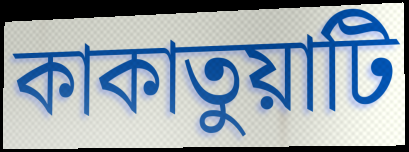
কাকাতুয়াটি